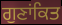
ਗੁਣਾਂਕਿਤ